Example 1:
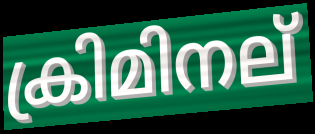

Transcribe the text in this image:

ക്രിമിനല്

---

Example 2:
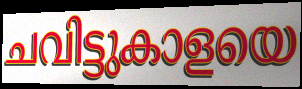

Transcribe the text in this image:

ചവിട്ടുകാളയെ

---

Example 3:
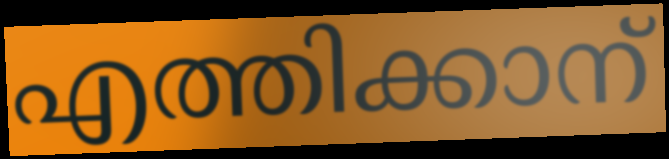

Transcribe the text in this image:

എത്തിക്കാന്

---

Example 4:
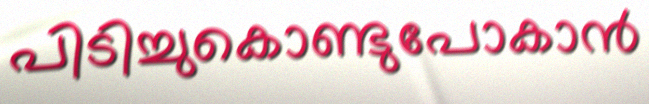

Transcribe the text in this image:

പിടിച്ചുകൊണ്ടുപോകാൻ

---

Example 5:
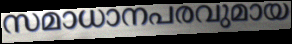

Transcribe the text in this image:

സമാധാനപരവുമായ